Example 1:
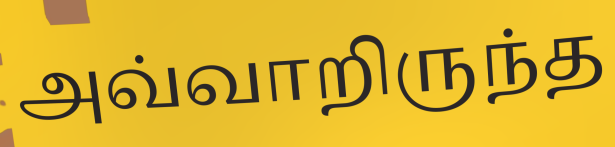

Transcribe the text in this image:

அவ்வாறிருந்த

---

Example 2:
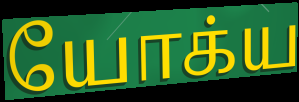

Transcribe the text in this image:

யோக்ய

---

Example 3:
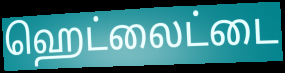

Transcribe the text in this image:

ஹெட்லைட்டை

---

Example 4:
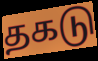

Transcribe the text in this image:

தகடு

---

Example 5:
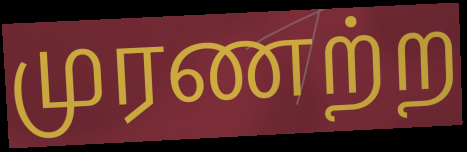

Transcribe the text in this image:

முரணற்ற